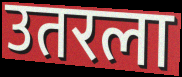
उतरला